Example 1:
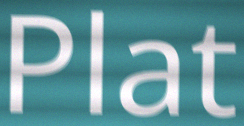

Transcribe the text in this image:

Plat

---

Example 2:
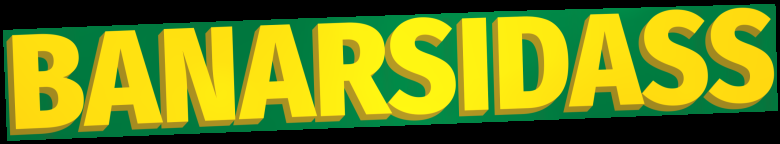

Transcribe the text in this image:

BANARSIDASS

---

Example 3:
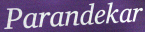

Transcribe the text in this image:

Parandekar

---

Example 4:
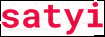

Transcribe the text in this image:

satyi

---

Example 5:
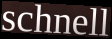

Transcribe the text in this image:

schnell